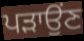
ਪੜਾਉਂਣ